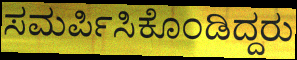
ಸಮರ್ಪಿಸಿಕೊಂಡಿದ್ದರು